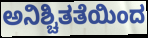
ಅನಿಶ್ಚಿತತೆಯಿಂದ